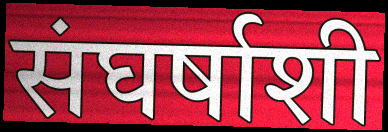
संघर्षाशी